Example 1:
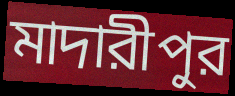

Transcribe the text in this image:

মাদারীপুর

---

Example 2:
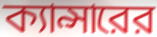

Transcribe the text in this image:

ক্যান্সারের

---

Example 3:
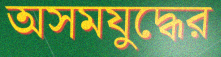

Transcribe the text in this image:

অসমযুদ্ধের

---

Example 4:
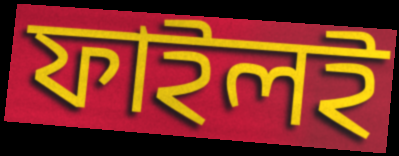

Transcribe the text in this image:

ফাইলই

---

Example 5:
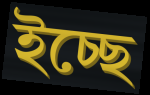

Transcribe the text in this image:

ইচ্ছে